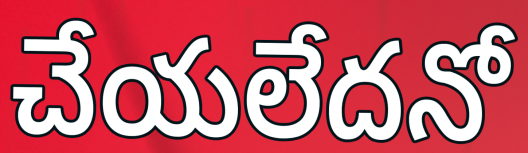
చేయలేదనో